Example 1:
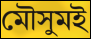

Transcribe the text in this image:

মৌসুমই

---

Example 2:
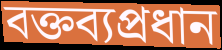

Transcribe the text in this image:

বক্তব্যপ্রধান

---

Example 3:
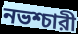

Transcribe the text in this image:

নভশ্চারী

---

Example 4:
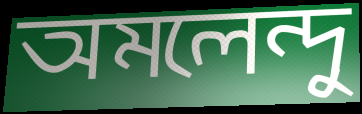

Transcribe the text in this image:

অমলেন্দু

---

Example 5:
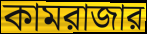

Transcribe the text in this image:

কামরাজার